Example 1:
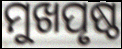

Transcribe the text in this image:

ମୁଖପୃଷ୍ଠ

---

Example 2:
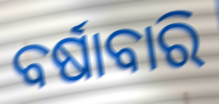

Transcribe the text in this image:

ବର୍ଷାବାରି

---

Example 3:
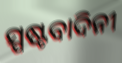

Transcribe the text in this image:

ସ୍ପଷ୍ଟବାଦିନୀ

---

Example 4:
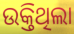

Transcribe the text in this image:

ଉକ୍ତିଥିଲା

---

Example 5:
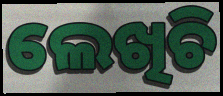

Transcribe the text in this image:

ଲେଖିଚି